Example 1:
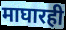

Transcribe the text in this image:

माघारही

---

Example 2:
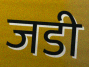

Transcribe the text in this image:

जडी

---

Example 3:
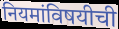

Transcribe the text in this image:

नियमांविषयीची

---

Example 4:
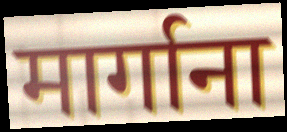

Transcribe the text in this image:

मार्गाना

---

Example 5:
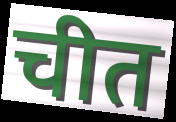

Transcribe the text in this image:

चीत